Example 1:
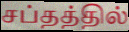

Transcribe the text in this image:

சப்தத்தில்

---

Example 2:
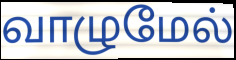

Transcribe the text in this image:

வாழுமேல்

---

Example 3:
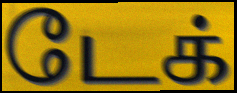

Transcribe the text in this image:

டேக்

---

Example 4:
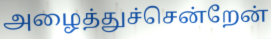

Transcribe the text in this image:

அழைத்துச்சென்றேன்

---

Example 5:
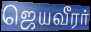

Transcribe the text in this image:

ஜெயவீரர்